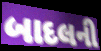
બાદલની